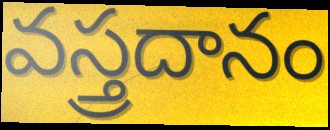
వస్త్రదానం